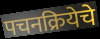
पचनक्रियेचे